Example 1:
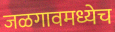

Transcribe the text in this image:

जळगावमध्येच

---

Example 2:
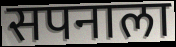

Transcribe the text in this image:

सपनाला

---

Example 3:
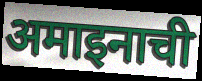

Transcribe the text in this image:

अमाइनाची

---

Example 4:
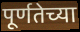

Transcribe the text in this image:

पूर्णतेच्या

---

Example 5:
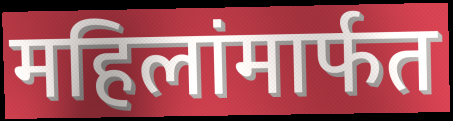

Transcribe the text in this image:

महिलांमार्फत